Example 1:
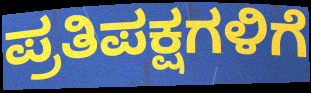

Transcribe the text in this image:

ಪ್ರತಿಪಕ್ಷಗಳಿಗೆ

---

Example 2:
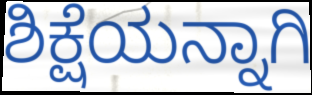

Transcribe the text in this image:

ಶಿಕ್ಷೆಯನ್ನಾಗಿ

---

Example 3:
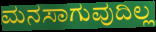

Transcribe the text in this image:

ಮನಸಾಗುವುದಿಲ್ಲ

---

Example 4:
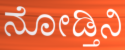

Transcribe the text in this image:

ನೋಡ್ತಿನಿ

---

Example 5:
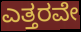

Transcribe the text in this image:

ಎತ್ತರವೇ